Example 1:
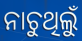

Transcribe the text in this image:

ନାଚୁଥିଲୁଁ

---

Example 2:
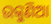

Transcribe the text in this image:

ଉକୁଣିଆ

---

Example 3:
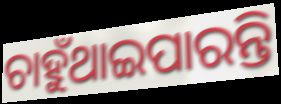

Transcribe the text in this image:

ଚାହୁଁଥାଇପାରନ୍ତି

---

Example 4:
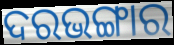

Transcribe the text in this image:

ଦରଭଙ୍ଗାର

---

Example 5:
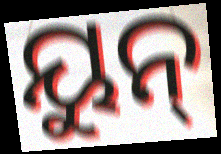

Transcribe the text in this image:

ୟୁନ୍